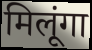
मिलूंगा